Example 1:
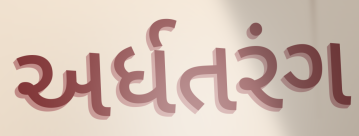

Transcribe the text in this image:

અર્ધતરંગ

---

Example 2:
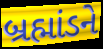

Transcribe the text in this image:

બ્રહ્માંડને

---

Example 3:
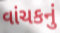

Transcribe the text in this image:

વાંચકનું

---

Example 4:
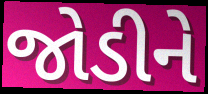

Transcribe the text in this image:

જોડીને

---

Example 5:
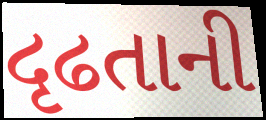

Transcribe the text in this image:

દૃઢતાની